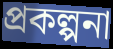
প্রকল্পনা